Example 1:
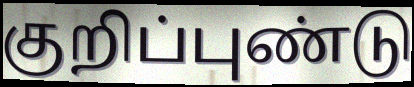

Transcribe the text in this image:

குறிப்புண்டு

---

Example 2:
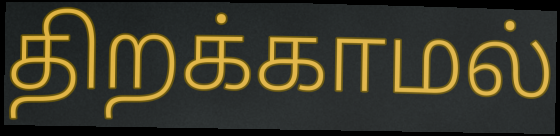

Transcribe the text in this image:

திறக்காமல்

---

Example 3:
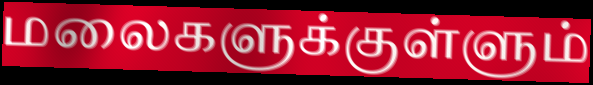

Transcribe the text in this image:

மலைகளுக்குள்ளும்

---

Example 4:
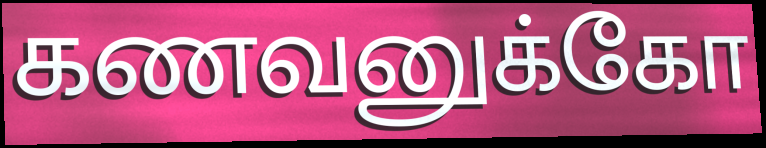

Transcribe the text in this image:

கணவனுக்கோ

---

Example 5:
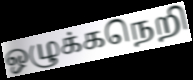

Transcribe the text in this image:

ஒழுக்கநெறி